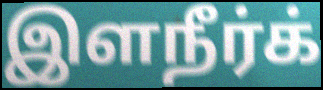
இளநீர்க்